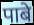
पाबे